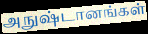
அநுஷ்டானங்கள்